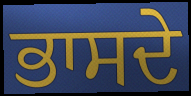
ਭਾਸਦੇ